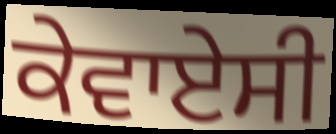
ਕੇਵਾਏਸੀ